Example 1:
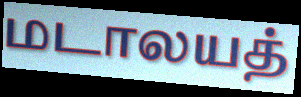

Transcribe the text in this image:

மடாலயத்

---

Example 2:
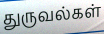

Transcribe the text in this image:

துருவல்கள்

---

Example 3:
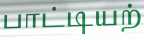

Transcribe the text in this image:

பாட்டியற்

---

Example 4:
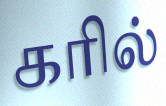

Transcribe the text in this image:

கரில்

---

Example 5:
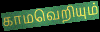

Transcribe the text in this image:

காமவெறியும்